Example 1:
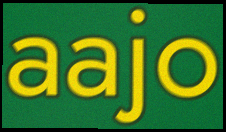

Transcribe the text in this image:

aajo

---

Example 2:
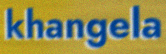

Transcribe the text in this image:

khangela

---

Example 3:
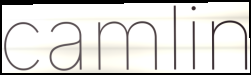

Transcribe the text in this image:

camlin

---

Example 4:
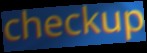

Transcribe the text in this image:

checkup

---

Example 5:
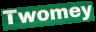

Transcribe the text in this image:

Twomey